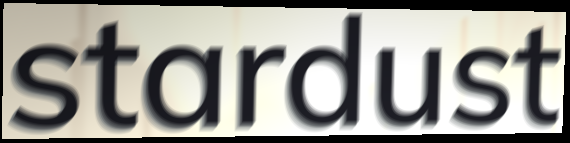
stardust